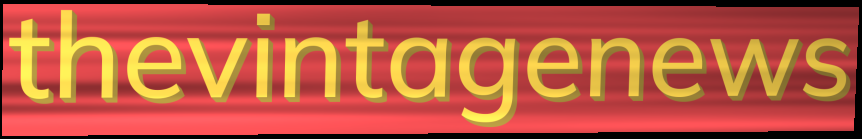
thevintagenews